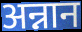
अन्नान